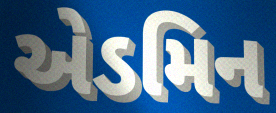
એડમિન